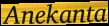
Anekanta